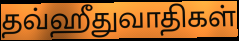
தவ்ஹீதுவாதிகள்